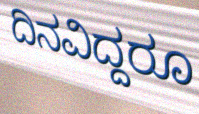
ದಿನವಿದ್ದರೂ